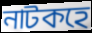
নাটকহে